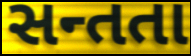
સન્તતા